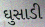
ઘુસાડી